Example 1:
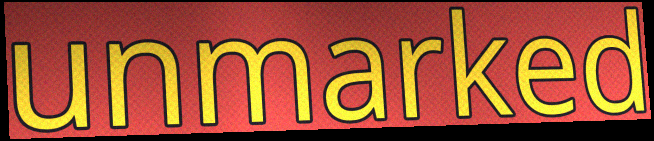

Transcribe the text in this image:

unmarked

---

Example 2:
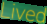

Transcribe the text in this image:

Lived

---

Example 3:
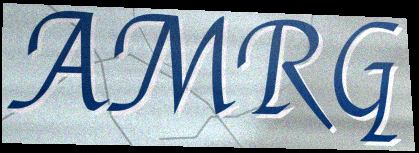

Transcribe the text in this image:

AMRG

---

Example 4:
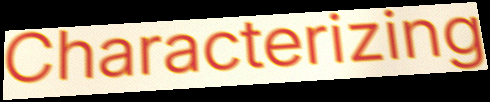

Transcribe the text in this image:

Characterizing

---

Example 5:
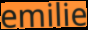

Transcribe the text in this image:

emilie